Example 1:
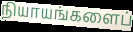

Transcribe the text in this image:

நியாயங்களைப்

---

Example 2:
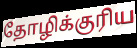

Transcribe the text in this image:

தோழிக்குரிய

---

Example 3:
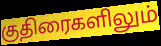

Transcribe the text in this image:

குதிரைகளிலும்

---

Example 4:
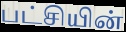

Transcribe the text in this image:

பட்சியின்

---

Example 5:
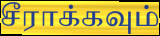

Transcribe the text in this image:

சீராக்கவும்